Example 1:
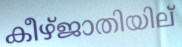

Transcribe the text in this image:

കീഴ്ജാതിയില്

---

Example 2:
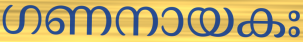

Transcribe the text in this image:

ഗണനായകഃ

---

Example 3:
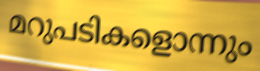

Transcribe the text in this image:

മറുപടികളൊന്നും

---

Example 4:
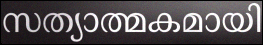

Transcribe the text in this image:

സത്യാത്മകമായി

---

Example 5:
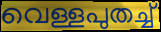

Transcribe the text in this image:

വെള്ളപുതച്ച്